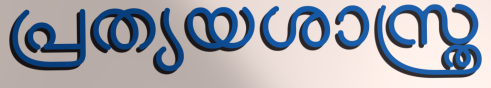
പ്രത്യയശാസ്ത്ര